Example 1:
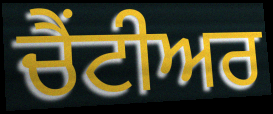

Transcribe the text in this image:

ਚੈਂਟੀਅਰ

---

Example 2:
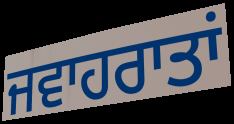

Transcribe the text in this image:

ਜਵਾਹਰਾਤਾਂ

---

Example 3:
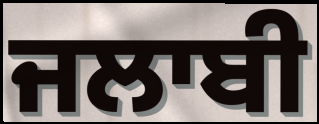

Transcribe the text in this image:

ਜਲਾਬੀ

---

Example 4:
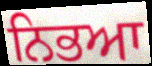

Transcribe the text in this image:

ਨਿਭਆ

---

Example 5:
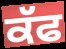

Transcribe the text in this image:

ਕੱਫ